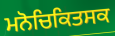
ਮਨੋਚਿਕਿਤਸਕ